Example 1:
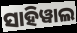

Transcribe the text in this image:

ସାହିୱାଲ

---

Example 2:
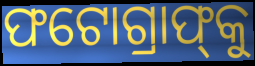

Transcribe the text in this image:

ଫଟୋଗ୍ରାଫ୍‌କୁ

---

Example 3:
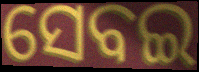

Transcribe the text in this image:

ସେବଇ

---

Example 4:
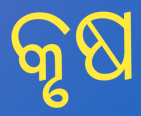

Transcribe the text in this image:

କୃଷ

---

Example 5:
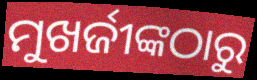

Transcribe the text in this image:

ମୁଖର୍ଜୀଙ୍କଠାରୁ